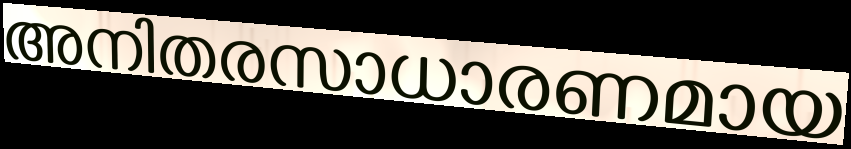
അനിതരസാധാരണമായ